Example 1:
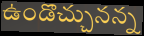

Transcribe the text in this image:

ఉండొచ్చునన్న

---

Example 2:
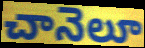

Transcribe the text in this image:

చానెలూ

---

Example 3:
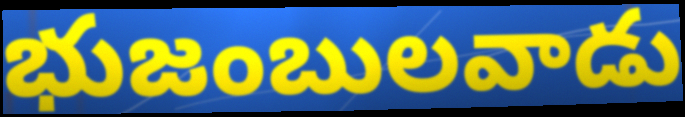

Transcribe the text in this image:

భుజంబులవాడు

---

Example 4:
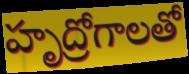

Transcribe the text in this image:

హృద్రోగాలతో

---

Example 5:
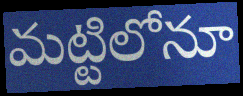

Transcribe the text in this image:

మట్టిలోనూ